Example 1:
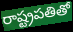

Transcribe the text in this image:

రాష్ట్రపతితో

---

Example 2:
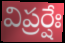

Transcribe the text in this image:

విప్రర్షేః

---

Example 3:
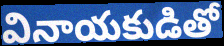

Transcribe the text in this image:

వినాయకుడితో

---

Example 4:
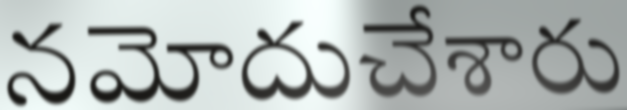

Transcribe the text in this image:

నమోదుచేశారు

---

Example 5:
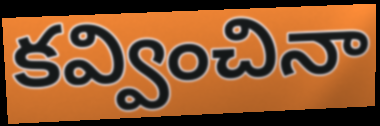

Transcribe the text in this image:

కవ్వించినా